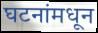
घटनांमधून